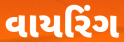
વાયરિંગ